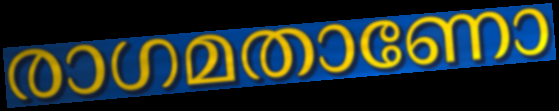
രാഗമതാണോ